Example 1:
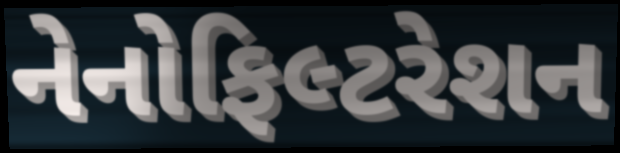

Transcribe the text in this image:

નેનોફિલ્ટરેશન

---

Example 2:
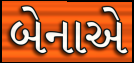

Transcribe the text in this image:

બેનાએ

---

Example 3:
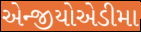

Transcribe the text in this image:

એન્જીયોએડીમા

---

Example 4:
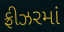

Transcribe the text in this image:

ફ્રીઝરમાં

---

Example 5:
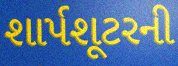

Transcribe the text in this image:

શાર્પશૂટરની